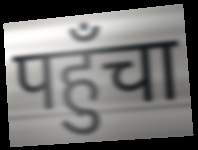
पहुँचा